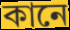
কানে